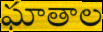
ఘాతాల